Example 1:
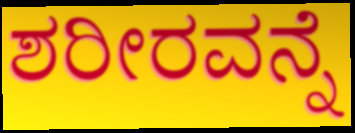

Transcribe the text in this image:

ಶರೀರವನ್ನೆ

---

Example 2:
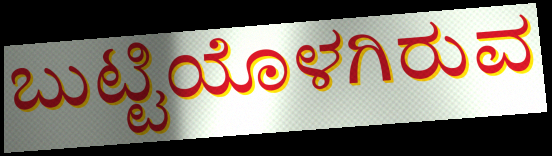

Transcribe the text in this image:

ಬುಟ್ಟಿಯೊಳಗಿರುವ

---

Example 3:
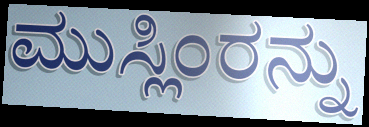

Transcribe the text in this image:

ಮುಸ್ಲಿಂರನ್ನು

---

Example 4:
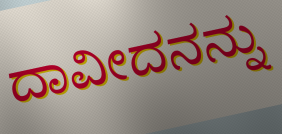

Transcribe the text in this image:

ದಾವೀದನನ್ನು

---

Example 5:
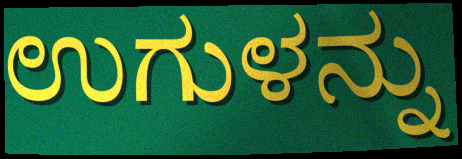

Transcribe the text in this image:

ಉಗುಳನ್ನು